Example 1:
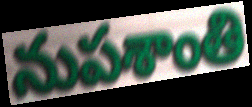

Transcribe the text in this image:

నుపశాంతి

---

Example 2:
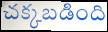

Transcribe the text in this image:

చక్కబడింది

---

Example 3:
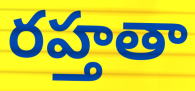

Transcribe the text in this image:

రహ్తతా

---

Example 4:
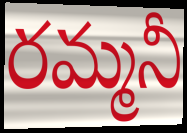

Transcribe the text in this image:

రమ్మనీ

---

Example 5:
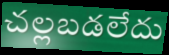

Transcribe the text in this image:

చల్లబడలేదు